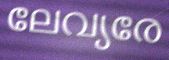
ലേവ്യരേ